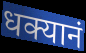
धक्यानं